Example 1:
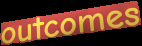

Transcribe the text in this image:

outcomes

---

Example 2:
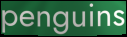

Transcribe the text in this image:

penguins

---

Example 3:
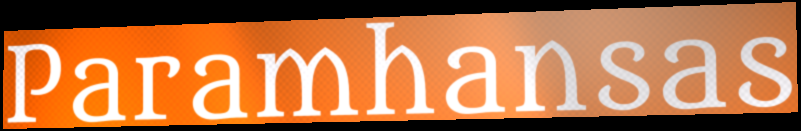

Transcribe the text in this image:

Paramhansas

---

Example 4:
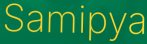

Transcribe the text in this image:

Samipya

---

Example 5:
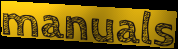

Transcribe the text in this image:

manuals